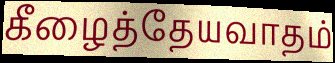
கீழைத்தேயவாதம்